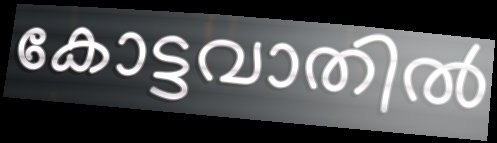
കോട്ടവാതിൽ